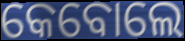
କେବୋଲେ